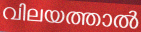
വിലയത്താൽ